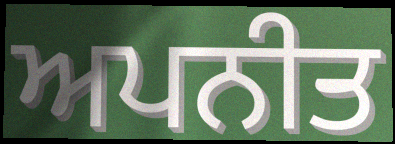
ਅਪਨੀਤ